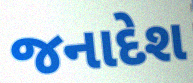
જનાદેશ